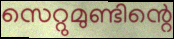
സെറ്റുമുണ്ടിന്റെ